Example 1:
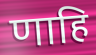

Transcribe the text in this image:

णाहि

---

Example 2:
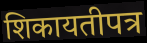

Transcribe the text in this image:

शिकायतीपत्र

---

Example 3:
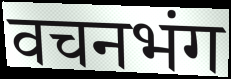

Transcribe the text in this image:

वचनभंग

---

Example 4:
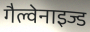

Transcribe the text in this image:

गैल्वेनाइज्ड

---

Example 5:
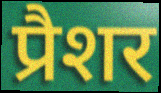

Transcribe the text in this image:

प्रैशर